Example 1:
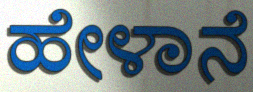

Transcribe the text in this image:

ಹೇಳಾನೆ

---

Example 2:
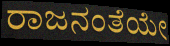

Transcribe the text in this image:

ರಾಜನಂತೆಯೇ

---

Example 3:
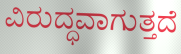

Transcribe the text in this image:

ವಿರುದ್ಧವಾಗುತ್ತದೆ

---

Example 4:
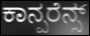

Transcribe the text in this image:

ಕಾನ್ಪರೆನ್ಸ್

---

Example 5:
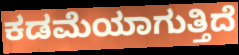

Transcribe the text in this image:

ಕಡಮೆಯಾಗುತ್ತಿದೆ